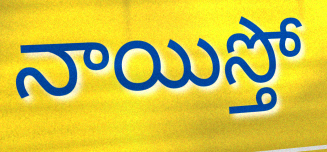
నాయిస్తో